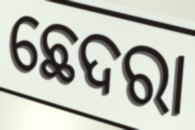
ଛେଦରା